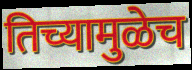
तिच्यामुळेच